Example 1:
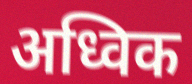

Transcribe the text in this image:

अध्विक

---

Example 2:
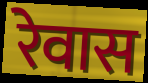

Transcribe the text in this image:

रेवास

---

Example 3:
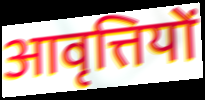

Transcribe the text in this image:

आवृत्तियों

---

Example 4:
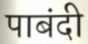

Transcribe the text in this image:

पाबंदी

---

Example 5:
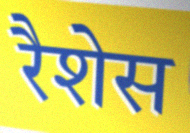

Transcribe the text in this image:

रैशेस